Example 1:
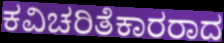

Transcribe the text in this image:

ಕವಿಚರಿತೆಕಾರರಾದ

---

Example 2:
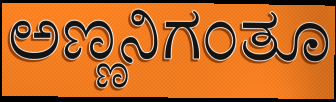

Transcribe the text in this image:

ಅಣ್ಣನಿಗಂತೂ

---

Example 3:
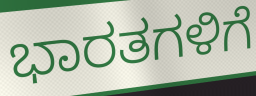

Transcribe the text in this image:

ಭಾರತಗಳಿಗೆ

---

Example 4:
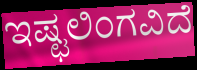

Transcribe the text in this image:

ಇಷ್ಟಲಿಂಗವಿದೆ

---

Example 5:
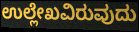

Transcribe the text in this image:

ಉಲ್ಲೇಖವಿರುವುದು